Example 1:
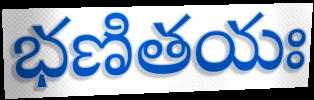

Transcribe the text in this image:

భణితయః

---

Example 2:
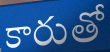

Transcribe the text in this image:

కారుతో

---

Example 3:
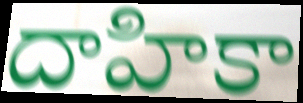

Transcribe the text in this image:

దాహికా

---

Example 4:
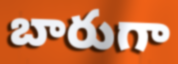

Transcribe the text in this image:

బారుగా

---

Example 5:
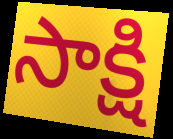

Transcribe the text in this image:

సాక్షి